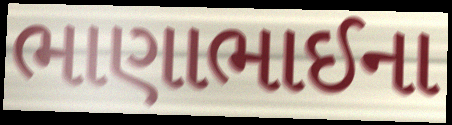
ભાણાભાઈના